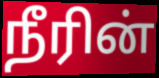
நீரின்